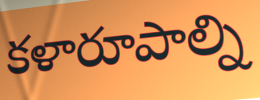
కళారూపాల్ని